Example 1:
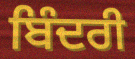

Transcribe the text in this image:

ਬਿੰਦਰੀ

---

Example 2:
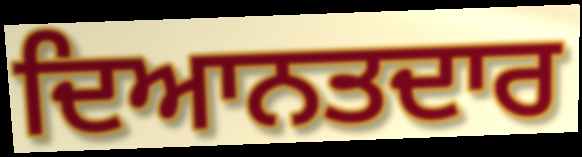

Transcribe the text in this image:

ਦਿਆਨਤਦਾਰ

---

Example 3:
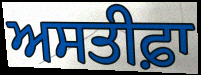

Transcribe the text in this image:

ਅਸਤੀਫ਼ਾ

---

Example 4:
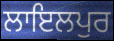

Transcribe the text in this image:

ਲਾਇਲਪੁਰ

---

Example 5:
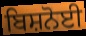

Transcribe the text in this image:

ਬਿਸ਼ਨੋਈ